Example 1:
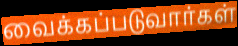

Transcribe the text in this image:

வைக்கப்படுவார்கள்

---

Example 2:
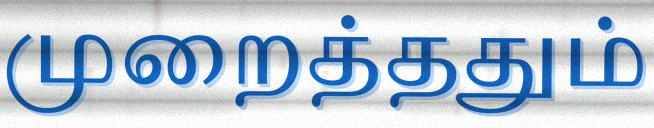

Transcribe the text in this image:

முறைத்ததும்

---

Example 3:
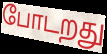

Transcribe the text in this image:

போடறது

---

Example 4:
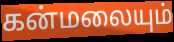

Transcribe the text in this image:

கன்மலையும்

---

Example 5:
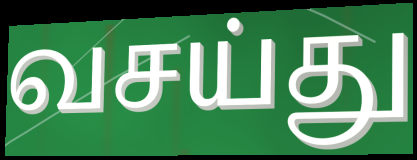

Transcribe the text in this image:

வசய்து